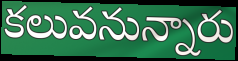
కలువనున్నారు